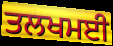
ਤਲਖਮਈ